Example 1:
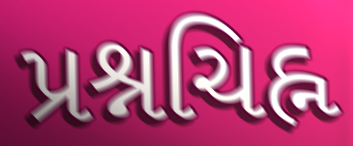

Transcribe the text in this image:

પ્રશ્નચિહ્ન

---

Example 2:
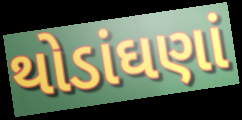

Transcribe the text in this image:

થોડાંઘણાં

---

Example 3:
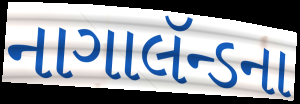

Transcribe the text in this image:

નાગાલૅન્ડના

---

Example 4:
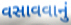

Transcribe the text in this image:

વસાવવાનું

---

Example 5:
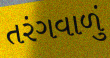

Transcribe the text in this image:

તરંગવાળું